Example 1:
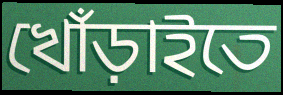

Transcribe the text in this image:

খোঁড়াইতে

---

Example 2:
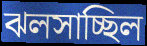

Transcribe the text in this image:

ঝলসাচ্ছিল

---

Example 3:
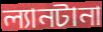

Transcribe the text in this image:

ল্যানটানা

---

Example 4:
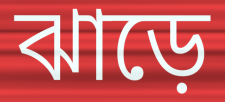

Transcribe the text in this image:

ঝাড়ে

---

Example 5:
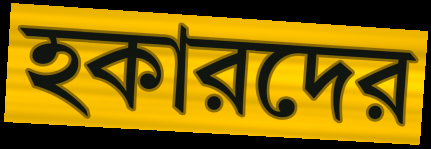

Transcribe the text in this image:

হকারদের